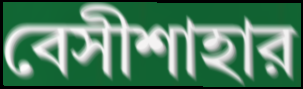
বেসীশাহার